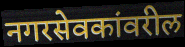
नगरसेवकांवरील